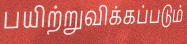
பயிற்றுவிக்கப்படும்